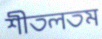
শীতলতম